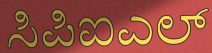
ಸಿಪಿಐಎಲ್